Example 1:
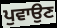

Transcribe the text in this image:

ਪੁਵਾਉਣ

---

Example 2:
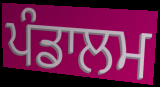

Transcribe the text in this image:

ਪੰਡਾਲਮ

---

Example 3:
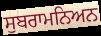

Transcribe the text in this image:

ਸੁਬਰਾਮਨਿਅਨ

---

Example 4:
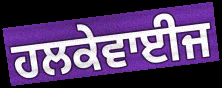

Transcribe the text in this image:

ਹਲਕੇਵਾਈਜ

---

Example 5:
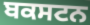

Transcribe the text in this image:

ਬਕਸਟਨ